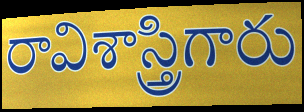
రావిశాస్త్రిగారు